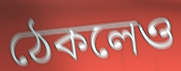
ঠেকলেও